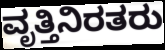
ವೃತ್ತಿನಿರತರು